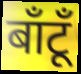
बाँटूँ